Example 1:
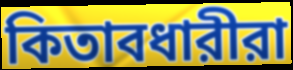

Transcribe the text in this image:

কিতাবধারীরা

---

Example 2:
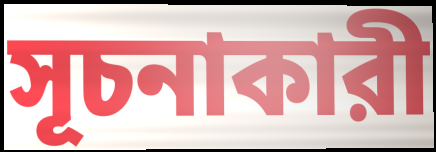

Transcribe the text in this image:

সূচনাকারী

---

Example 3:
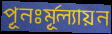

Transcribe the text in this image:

পূনঃর্মূল্যায়ন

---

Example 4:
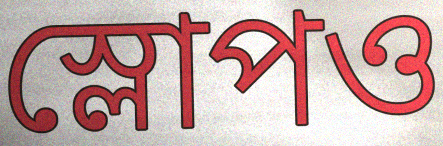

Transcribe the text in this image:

স্লোপও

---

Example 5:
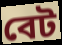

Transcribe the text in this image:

বেট